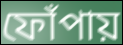
ফোঁপায়